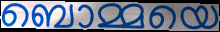
ബൊമ്മയെ